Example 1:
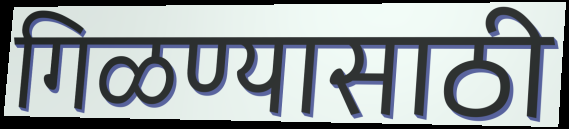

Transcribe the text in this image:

गिळण्यासाठी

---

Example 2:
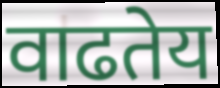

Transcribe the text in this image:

वाढतेय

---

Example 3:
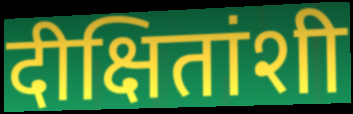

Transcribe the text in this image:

दीक्षितांशी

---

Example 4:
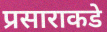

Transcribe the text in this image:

प्रसाराकडे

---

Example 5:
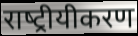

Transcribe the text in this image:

राष्ट्रीयीकरण